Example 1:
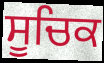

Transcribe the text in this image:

ਸੂਚਿਕ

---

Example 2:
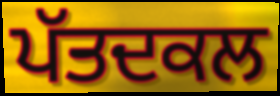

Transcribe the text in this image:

ਪੱਤਦਕਲ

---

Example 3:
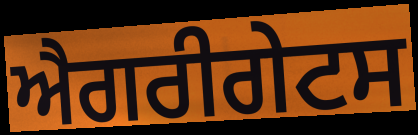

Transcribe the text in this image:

ਐਗਰੀਗੇਟਸ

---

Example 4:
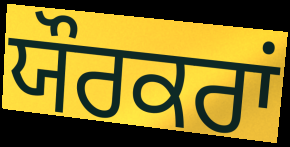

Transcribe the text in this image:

ਯੌਰਕਰਾਂ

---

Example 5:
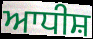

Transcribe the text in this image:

ਆਧੀਸ਼